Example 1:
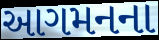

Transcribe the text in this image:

આગમનના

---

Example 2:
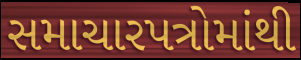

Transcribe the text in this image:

સમાચારપત્રોમાંથી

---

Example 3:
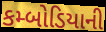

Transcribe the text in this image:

કમ્બોડિયાની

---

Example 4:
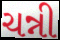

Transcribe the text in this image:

ચન્ની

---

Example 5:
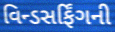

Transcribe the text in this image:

વિન્ડસર્ફિંગની